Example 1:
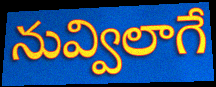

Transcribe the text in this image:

నువ్విలాగే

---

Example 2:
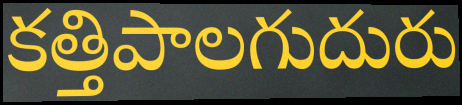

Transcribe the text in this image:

కత్తిపాలగుదురు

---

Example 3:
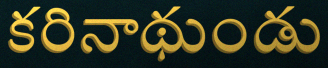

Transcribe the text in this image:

కరినాథుండు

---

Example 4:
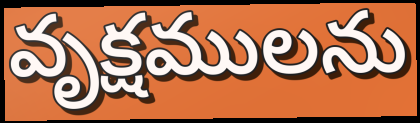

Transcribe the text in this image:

వృక్షములను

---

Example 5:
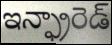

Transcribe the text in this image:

ఇన్ఫ్రారెడ్